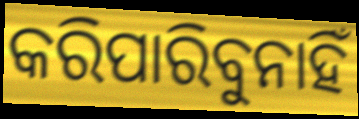
କରିପାରିବୁନାହିଁ